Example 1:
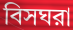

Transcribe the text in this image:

বিসঘরা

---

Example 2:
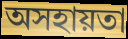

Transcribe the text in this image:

অসহায়তা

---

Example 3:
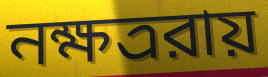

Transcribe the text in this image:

নক্ষত্ররায়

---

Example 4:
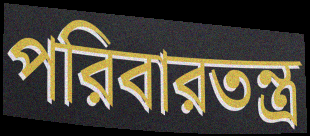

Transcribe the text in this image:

পরিবারতন্ত্র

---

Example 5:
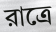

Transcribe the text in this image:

রাত্রে